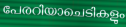
പേരറിയാചെടികളും